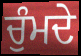
ਚੁੰਮਦੇ